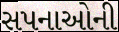
સપનાઓની